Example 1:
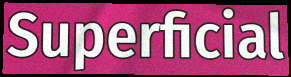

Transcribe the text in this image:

Superficial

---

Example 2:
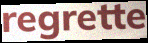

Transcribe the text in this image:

regrette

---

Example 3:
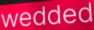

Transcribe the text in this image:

wedded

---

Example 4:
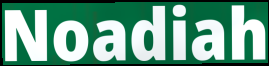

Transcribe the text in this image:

Noadiah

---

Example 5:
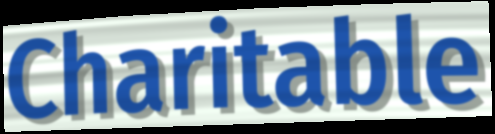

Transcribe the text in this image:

Charitable